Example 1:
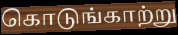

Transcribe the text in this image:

கொடுங்காற்று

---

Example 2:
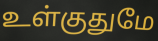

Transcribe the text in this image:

உள்குதுமே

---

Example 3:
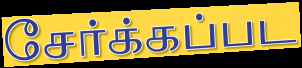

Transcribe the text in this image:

சேர்க்கப்பட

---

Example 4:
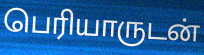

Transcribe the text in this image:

பெரியாருடன்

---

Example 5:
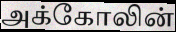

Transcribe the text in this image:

அக்கோலின்